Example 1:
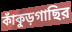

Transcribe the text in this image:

কাঁকুড়গাছির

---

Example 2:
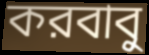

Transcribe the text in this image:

করবাবু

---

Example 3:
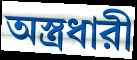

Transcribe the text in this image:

অস্ত্রধারী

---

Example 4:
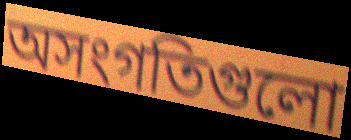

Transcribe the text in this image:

অসংগতিগুলো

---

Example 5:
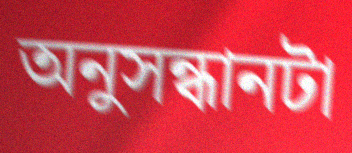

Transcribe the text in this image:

অনুসন্ধানটা